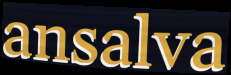
ansalva